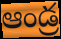
ఆండ్ర